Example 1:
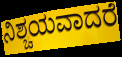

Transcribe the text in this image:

ನಿಶ್ಚಯವಾದರೆ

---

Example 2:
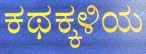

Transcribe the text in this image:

ಕಥಕ್ಕಳಿಯ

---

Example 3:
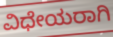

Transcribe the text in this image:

ವಿಧೇಯರಾಗಿ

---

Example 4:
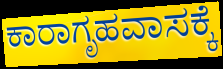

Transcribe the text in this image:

ಕಾರಾಗೃಹವಾಸಕ್ಕೆ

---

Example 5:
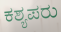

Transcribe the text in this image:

ಕಶ್ಯಪರು